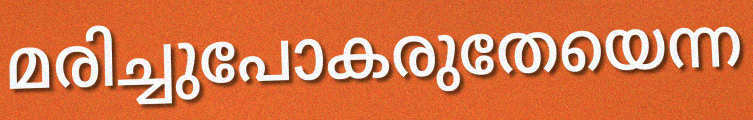
മരിച്ചുപോകരുതേയെന്ന